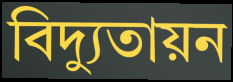
বিদ্যুতায়ন